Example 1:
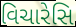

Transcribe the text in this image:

વિચારેસિ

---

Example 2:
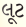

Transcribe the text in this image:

લૂટ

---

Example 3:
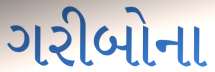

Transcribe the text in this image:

ગરીબોના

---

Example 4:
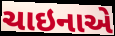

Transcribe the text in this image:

ચાઇનાએ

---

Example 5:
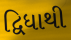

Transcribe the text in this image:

દ્વિધાથી